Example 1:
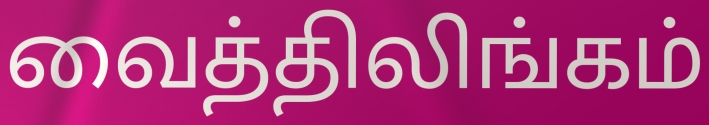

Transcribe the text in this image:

வைத்திலிங்கம்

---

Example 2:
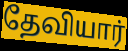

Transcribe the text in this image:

தேவியார்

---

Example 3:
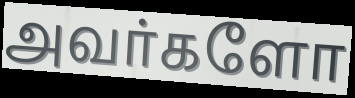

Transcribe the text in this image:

அவர்களோ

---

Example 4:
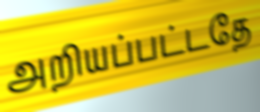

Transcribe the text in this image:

அறியப்பட்டதே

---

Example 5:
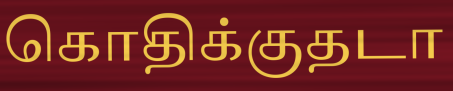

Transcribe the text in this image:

கொதிக்குதடா